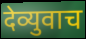
देव्युवाच